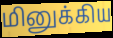
மினுக்கிய